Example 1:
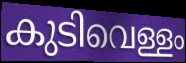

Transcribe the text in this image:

കുടിവെള്ളം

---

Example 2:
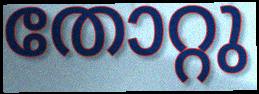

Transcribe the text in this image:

തോറ്റു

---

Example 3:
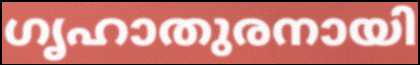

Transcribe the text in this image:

ഗൃഹാതുരനായി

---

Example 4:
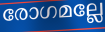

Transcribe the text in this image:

രോഗമല്ലേ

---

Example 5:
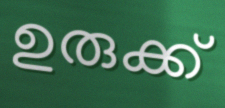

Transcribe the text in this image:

ഉരുക്ക്